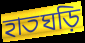
হাতঘড়ি